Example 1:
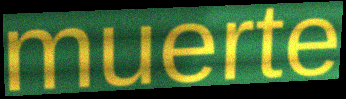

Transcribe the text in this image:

muerte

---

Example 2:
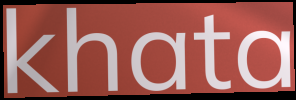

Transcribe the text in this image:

khata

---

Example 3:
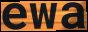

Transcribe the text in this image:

ewa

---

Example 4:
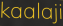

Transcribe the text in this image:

kaalaji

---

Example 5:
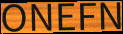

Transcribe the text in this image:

ONEFN